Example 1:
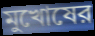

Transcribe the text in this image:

মুখোষের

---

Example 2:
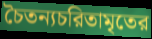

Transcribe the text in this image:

চৈতন্যচরিতামৃতের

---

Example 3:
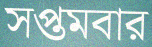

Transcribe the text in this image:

সপ্তমবার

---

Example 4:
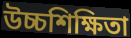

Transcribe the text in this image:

উচ্চশিক্ষিতা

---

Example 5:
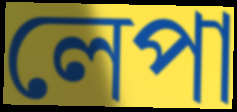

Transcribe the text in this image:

লেপা